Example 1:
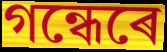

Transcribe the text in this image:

গন্ধেৰে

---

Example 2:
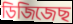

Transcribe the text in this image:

ডিজিজেছ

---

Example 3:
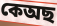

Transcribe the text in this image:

কেঅছ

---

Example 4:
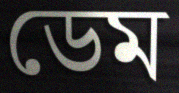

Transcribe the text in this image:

ডেম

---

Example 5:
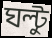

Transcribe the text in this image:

ঘল্টু